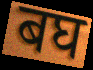
बघ